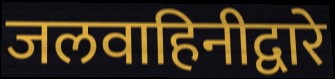
जलवाहिनीद्वारे